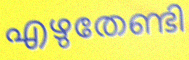
എഴുതേണ്ടി